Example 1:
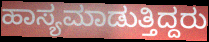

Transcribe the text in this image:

ಹಾಸ್ಯಮಾಡುತ್ತಿದ್ದರು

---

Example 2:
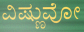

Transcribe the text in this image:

ವಿಷ್ಣುವೋ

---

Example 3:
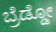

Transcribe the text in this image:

ಬ್ರೆಡ್ಡೋ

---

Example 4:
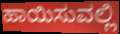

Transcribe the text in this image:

ಹಾಯಿಸುವಲ್ಲಿ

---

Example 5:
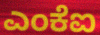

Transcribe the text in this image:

ಎಂಕೆಐ